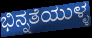
ಭಿನ್ನತೆಯುಳ್ಳ